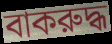
বাকরুদ্ধ